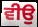
ਵੀਉ